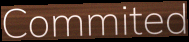
Commited